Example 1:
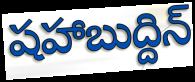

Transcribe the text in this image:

షహాబుద్దిన్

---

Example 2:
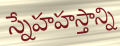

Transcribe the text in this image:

స్నేహహస్తాన్ని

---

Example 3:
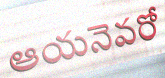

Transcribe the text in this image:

ఆయనెవరో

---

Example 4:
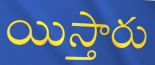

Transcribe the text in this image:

యిస్తారు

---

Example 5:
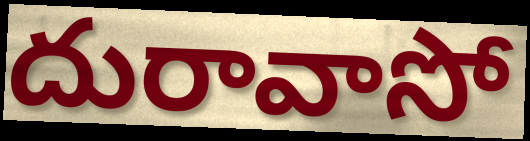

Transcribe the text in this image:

దురావాసో